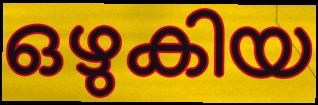
ഒഴുകിയ